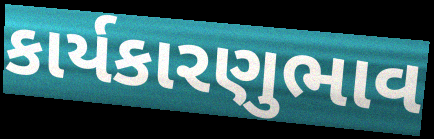
કાર્યકારણુભાવ